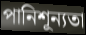
পানিশূন্যতা